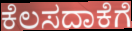
ಕೆಲಸದಾಕೆಗೆ